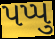
પપ્પુ